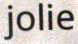
jolie